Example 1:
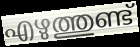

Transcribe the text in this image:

എഴുത്തുണ്ട്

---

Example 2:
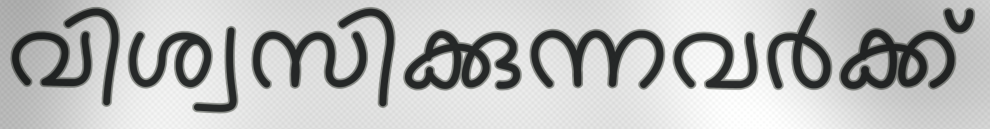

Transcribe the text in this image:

വിശ്വസിക്കുന്നവർക്ക്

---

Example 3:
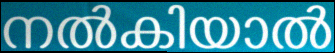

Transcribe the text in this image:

നൽകിയാൽ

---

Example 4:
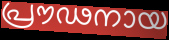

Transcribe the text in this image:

പ്രൗഢനായ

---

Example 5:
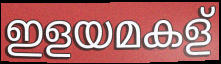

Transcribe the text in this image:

ഇളയമകള്